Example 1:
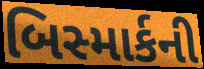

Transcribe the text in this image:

બિસ્માર્કની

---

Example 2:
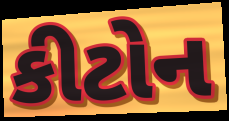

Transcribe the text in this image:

કીટોન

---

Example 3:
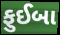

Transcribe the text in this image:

ફુઈબા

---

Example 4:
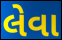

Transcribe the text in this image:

લેવા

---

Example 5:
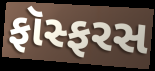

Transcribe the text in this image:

ફૉસ્ફરસ